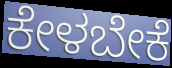
ಕೇಳಬೇಕೆ